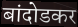
बांदोडकर